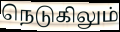
நெடுகிலும்